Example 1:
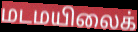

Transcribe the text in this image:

மடமயிலைக்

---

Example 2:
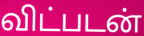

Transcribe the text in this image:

விட்படன்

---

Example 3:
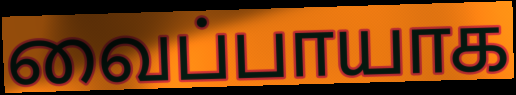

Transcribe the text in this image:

வைப்பாயாக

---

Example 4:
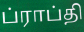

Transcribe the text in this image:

ப்ராப்தி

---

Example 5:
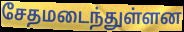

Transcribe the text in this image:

சேதமடைந்துள்ளன